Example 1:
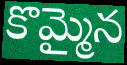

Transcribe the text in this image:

కొమ్మైన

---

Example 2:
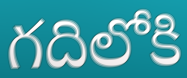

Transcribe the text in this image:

గదిలోకి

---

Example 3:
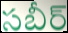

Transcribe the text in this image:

సబీర్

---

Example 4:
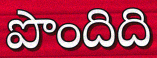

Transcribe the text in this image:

పొందిది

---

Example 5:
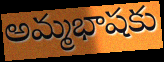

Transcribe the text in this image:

అమ్మభాషకు